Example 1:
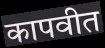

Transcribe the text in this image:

कापवीत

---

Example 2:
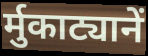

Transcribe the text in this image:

र्मुकाट्यानें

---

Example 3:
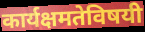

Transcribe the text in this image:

कार्यक्षमतेविषयी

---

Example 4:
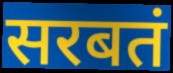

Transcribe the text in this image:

सरबतं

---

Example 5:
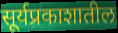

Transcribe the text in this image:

सूर्यप्रकाशातील